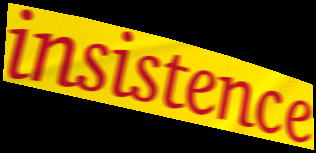
insistence